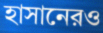
হাসানেরও